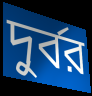
দুর্বর